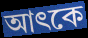
আৎকে